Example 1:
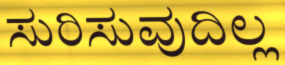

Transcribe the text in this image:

ಸುರಿಸುವುದಿಲ್ಲ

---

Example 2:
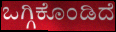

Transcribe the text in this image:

ಒಗ್ಗಿಕೊಂಡಿದೆ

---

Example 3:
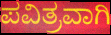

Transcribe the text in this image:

ಪವಿತ್ರವಾಗಿ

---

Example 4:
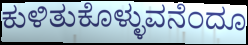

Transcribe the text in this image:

ಕುಳಿತುಕೊಳ್ಳುವನೆಂದೂ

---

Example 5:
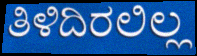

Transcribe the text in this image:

ತಿಳಿದಿರಲಿಲ್ಲ